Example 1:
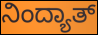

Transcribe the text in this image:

ನಿಂದ್ಯಾತ್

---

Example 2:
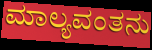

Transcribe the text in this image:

ಮಾಲ್ಯವಂತನು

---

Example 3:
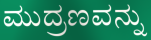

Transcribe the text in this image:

ಮುದ್ರಣವನ್ನು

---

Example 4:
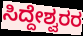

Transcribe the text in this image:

ಸಿದ್ದೇಶ್ವರರ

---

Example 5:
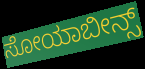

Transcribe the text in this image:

ಸೋಯಾಬೀನ್ಸ್